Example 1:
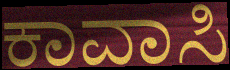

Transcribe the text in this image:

ಕಾವಾಸಿ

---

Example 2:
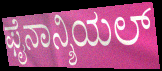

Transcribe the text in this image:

ಫೈನಾನ್ಶಿಯಲ್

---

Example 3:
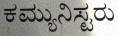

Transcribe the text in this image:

ಕಮ್ಯುನಿಸ್ಟರು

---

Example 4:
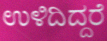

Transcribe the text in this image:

ಉಳಿದಿದ್ದರೆ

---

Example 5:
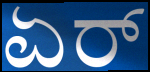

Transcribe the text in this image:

ಏರ್